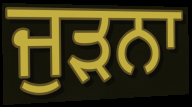
ਜੁੜਨਾ